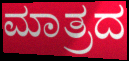
ಮಾತ್ರದ